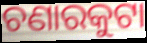
ଚଣାରକୁଟା